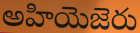
అహియెజెరు